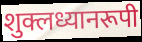
शुक्लध्यानरूपी